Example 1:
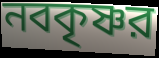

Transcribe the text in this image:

নবকৃষ্ণর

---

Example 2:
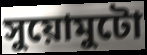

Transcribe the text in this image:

সুয়োমুটো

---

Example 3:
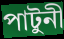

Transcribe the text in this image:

পাটুনী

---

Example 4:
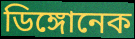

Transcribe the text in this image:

ডিঙ্গোনেক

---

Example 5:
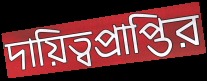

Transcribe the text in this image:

দায়িত্বপ্রাপ্তির